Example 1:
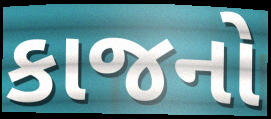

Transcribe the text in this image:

કાજનો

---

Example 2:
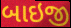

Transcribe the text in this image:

બાઇજી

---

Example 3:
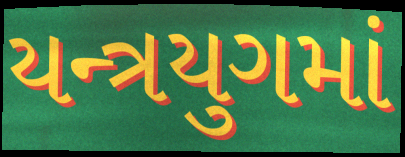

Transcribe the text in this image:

યન્ત્રયુગમાં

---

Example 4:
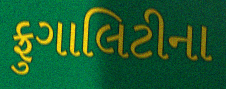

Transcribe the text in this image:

ફ્રુગાલિટીના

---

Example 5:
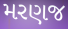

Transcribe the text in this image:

મરણજ